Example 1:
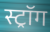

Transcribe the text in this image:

स्ट्रॉग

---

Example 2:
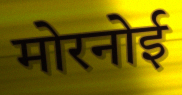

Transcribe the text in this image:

मोरनोई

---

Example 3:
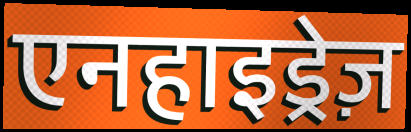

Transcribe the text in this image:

एनहाइड्रेज़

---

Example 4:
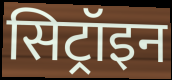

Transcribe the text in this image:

सिट्रॉइन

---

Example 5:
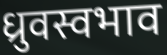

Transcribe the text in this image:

ध्रुवस्वभाव